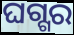
ଘଗ୍ଗର